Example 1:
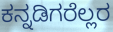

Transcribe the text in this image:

ಕನ್ನಡಿಗರೆಲ್ಲರ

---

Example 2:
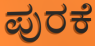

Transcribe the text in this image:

ಪುರಕೆ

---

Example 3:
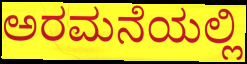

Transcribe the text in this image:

ಅರಮನೆಯಲ್ಲಿ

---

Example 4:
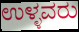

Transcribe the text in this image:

ಉಳ್ಳವರು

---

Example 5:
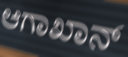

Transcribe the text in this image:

ಆಗಾಖಾನ್